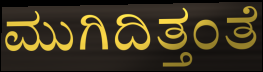
ಮುಗಿದಿತ್ತಂತೆ